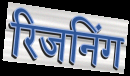
रिजनिंग